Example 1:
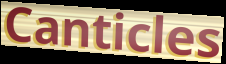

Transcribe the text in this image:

Canticles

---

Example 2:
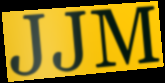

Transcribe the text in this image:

JJM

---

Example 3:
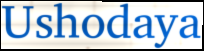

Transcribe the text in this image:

Ushodaya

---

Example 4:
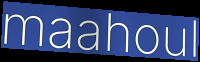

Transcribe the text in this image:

maahoul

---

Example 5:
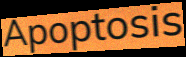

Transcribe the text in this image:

Apoptosis